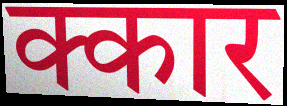
क्कार